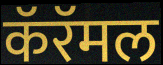
कॅरॅमल